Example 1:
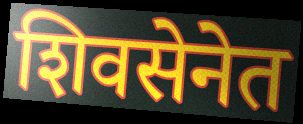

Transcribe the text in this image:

शिवसेनेत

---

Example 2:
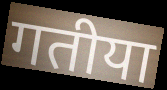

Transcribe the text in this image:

गतीया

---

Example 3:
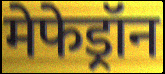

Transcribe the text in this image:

मेफेड्रॉन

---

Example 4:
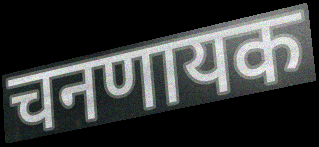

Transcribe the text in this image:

चनणायक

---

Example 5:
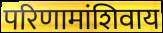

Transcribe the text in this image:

परिणामांशिवाय